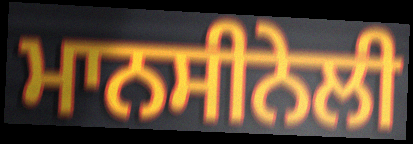
ਮਾਨਸੀਨੇਲੀ